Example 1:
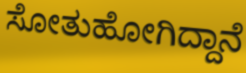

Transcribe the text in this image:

ಸೋತುಹೋಗಿದ್ದಾನೆ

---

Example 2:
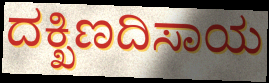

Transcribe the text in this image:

ದಕ್ಖಿಣದಿಸಾಯ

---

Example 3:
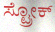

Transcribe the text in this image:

ಸ್ಟ್ರೋಕ್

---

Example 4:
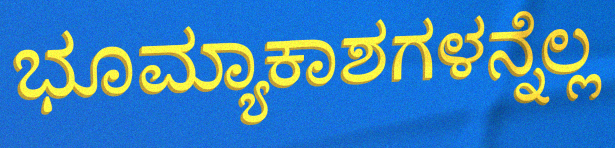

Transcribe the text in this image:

ಭೂಮ್ಯಾಕಾಶಗಳನ್ನೆಲ್ಲ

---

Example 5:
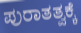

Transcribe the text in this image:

ಪುರಾತತ್ವಕ್ಕೆ